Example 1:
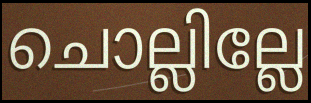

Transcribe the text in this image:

ചൊല്ലില്ലേ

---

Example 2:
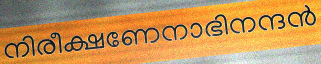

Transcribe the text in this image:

നിരീക്ഷണേനാഭിനന്ദൻ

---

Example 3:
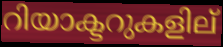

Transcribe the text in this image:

റിയാക്ടറുകളില്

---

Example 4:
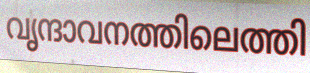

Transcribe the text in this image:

വൃന്ദാവനത്തിലെത്തി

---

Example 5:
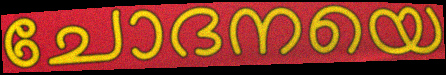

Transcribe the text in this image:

ചോദനയെ